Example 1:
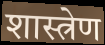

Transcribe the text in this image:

शास्त्रेण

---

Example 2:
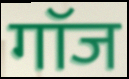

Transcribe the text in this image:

गॉज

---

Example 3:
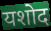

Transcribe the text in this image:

यशोद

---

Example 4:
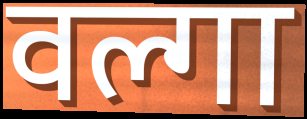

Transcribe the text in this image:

वल्गा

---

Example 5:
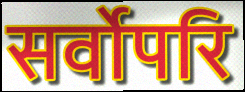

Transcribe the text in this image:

सर्वोपरि